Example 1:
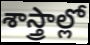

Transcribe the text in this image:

శాస్త్రాల్లో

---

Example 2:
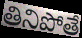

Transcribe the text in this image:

తినిపోతే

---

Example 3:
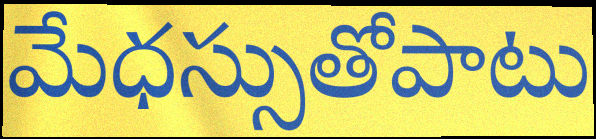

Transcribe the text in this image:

మేధస్సుతోపాటు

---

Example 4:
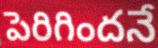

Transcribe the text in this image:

పెరిగిందనే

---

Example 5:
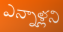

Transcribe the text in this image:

ఎన్నాళ్లని